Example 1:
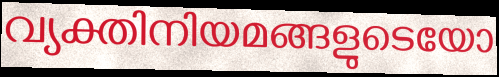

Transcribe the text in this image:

വ്യക്തിനിയമങ്ങളുടെയോ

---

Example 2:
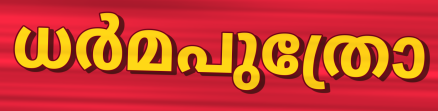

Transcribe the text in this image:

ധർമപുത്രോ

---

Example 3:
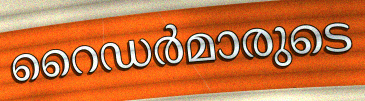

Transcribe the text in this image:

റൈഡർമാരുടെ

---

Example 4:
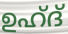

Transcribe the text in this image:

ഉഹ്ദ്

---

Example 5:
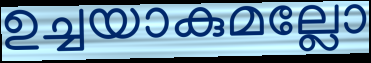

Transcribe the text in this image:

ഉച്ചയാകുമല്ലോ